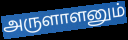
அருளாளனும்